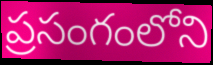
ప్రసంగంలోని